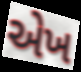
એખ